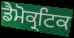
ਡੈਮੋਕ੍ਰਟਿਕ